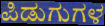
ಪಿಡುಗುಗಳ